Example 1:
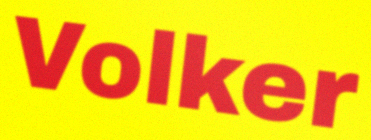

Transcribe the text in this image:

Volker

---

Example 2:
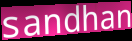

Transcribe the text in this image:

sandhan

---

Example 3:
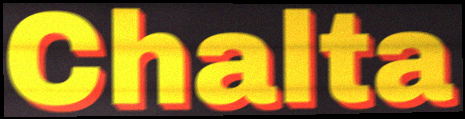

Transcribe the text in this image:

Chalta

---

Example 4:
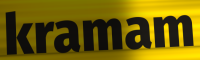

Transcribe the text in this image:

kramam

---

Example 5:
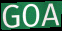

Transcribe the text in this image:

GOA